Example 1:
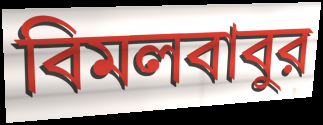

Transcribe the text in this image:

বিমলবাবুর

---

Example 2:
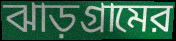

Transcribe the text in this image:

ঝাড়গ্রামের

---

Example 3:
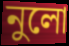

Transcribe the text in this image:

নুলো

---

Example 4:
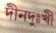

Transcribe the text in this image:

দীনদুঃখী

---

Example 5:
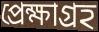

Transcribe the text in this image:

প্রেক্ষাগ্রহ